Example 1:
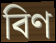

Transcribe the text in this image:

বিণ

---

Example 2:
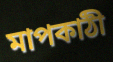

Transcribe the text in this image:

মাপকাঠী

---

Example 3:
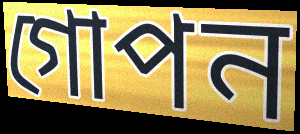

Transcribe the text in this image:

গোপন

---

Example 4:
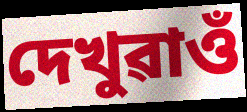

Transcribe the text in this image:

দেখুৱাওঁ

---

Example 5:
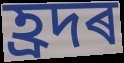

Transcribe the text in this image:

হ্ৰদৰ